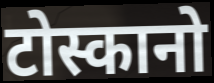
टोस्कानो